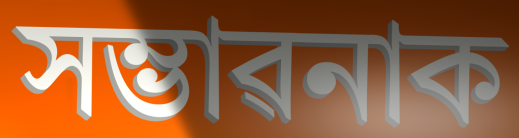
সম্ভাৱনাক